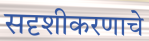
सदृशीकरणाचे